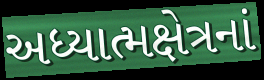
અધ્યાત્મક્ષેત્રનાં